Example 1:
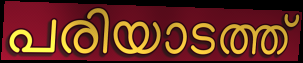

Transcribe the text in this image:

പരിയാടത്ത്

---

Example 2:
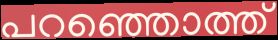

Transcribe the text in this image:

പറഞ്ഞൊത്ത്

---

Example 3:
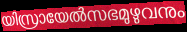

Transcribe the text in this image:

യിസ്രായേൽസഭമുഴുവനും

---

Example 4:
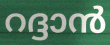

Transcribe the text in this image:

റദ്ദാൻ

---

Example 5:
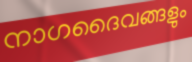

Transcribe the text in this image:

നാഗദൈവങ്ങളും